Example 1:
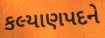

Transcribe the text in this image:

કલ્યાણપદને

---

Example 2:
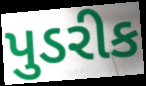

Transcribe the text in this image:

પુડરીક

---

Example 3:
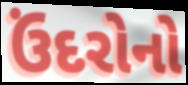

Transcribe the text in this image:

ઉંદરોનો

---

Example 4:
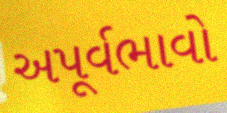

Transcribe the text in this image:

અપૂર્વભાવો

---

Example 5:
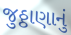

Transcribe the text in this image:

જુઠ્ઠાણાનું